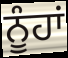
ਨੂੰਹਾਂ